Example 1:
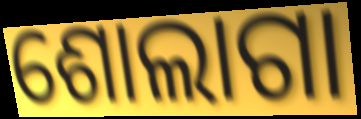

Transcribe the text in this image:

ଶୋଲାଗା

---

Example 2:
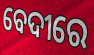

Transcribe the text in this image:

ବେଦୀରେ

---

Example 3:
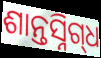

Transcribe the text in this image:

ଶାନ୍ତସ୍ନିଗ୍‌ଧ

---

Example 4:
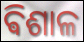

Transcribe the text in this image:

ଵିଶାଳ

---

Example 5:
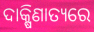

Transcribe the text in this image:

ଦାକ୍ଷିଣାତ୍ୟରେ